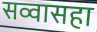
सव्वासहा